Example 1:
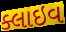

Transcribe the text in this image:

ક્લાઇવ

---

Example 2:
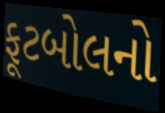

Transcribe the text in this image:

ફૂટબોલનો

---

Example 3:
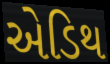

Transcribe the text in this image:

એડિથ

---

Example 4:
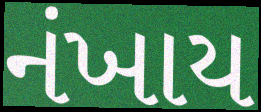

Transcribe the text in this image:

નંખાય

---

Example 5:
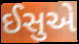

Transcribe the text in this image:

ઈસુએ